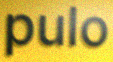
pulo